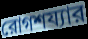
রোগশয্যার